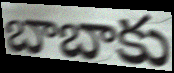
బాబాకు